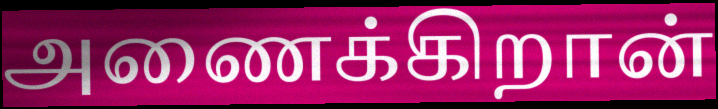
அணைக்கிறான்